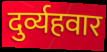
दुर्व्यहवार